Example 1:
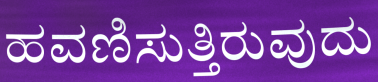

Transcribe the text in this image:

ಹವಣಿಸುತ್ತಿರುವುದು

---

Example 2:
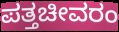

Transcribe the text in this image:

ಪತ್ತಚೀವರಂ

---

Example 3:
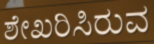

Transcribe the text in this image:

ಶೇಖರಿಸಿರುವ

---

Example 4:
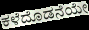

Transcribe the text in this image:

ಕಳೆದೊಡನೆಯೇ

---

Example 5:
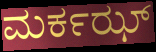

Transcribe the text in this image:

ಮರ್ಕಝ್